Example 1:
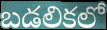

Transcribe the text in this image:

బడలికలో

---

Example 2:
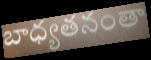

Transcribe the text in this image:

బాధ్యతనంతా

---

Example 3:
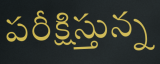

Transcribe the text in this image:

పరీక్షిస్తున్న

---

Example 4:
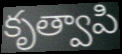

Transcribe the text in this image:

కృత్వాపి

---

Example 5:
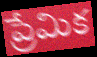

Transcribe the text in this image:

ప్రేమిక